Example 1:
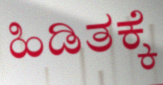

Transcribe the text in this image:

ಹಿಡಿತಕ್ಕೆ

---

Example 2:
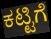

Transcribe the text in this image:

ಕಟ್ಟಿಗೆ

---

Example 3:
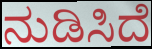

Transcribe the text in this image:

ನುಡಿಸಿದೆ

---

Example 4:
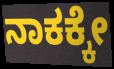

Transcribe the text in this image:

ನಾಕಕ್ಕೇ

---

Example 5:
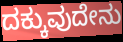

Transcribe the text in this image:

ದಕ್ಕುವುದೇನು